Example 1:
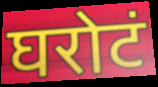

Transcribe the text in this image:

घरोटं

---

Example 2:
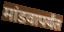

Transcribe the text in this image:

मांडवापर्यंत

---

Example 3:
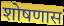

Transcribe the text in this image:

शोषणास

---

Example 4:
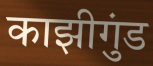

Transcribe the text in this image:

काझीगुंड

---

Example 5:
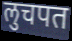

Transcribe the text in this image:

लुचपत